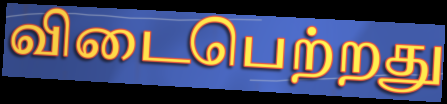
விடைபெற்றது